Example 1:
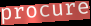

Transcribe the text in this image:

procure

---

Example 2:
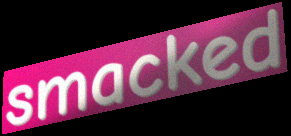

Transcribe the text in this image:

smacked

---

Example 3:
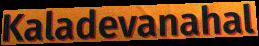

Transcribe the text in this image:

Kaladevanahal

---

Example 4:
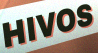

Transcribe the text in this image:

HIVOS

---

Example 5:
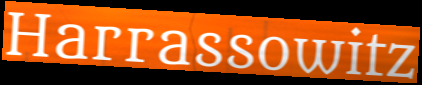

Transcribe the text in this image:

Harrassowitz